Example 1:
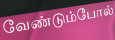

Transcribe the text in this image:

வேண்டும்போல்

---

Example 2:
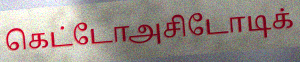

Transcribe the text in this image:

கெட்டோஅசிடோடிக்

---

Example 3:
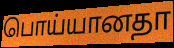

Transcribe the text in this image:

பொய்யானதா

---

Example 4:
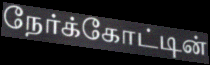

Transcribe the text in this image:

நேர்க்கோட்டின்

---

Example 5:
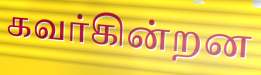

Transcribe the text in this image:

கவர்கின்றன